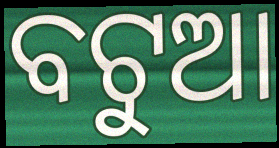
ବଟୁଆ